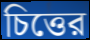
চিত্তের